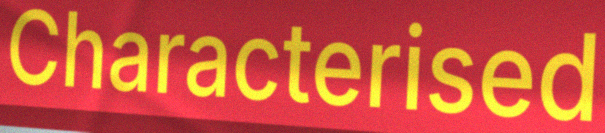
Characterised